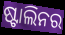
ଷ୍ଟାଲିନର